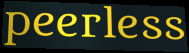
peerless